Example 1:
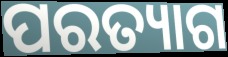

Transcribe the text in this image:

ପରତ୍ୟାଗ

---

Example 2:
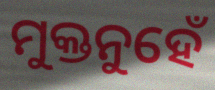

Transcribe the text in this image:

ମୁକ୍ତନୁହେଁ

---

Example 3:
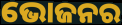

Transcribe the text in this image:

ଭୋଜନର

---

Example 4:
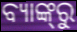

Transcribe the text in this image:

ବ୍ୟାଙ୍କ୍‌ରୁ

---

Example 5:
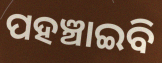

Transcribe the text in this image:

ପହଞ୍ଚାଇବି